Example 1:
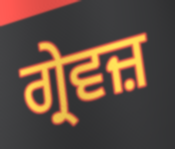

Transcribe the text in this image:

ਗ੍ਰੇਵਜ਼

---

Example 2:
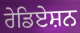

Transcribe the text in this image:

ਰੇਡਿਏਸ਼ਨ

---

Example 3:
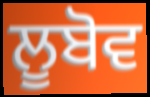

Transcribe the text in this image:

ਲੂਬੋਵ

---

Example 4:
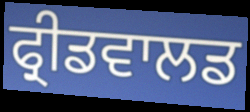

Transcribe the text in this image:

ਫ੍ਰੀਡਵਾਲਡ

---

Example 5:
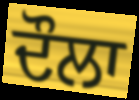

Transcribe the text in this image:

ਦੌਲਾ